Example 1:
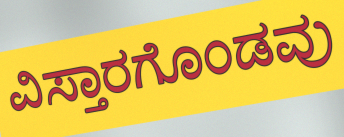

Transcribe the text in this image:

ವಿಸ್ತಾರಗೊಂಡವು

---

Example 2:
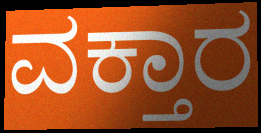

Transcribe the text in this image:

ವಕ್ತಾರ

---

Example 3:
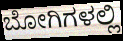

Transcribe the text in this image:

ಬೋಗಿಗಳಲ್ಲಿ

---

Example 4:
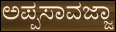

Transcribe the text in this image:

ಅಪ್ಪಸಾವಜ್ಜಾ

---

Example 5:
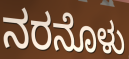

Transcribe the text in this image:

ನರನೊಳು